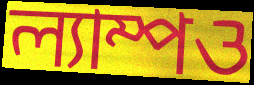
ল্যাম্পও